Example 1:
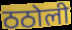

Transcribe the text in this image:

ठठोली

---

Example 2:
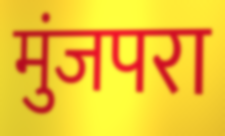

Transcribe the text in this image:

मुंजपरा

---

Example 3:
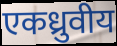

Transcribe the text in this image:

एकध्रुवीय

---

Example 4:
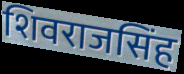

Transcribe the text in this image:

शिवराजसिंह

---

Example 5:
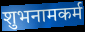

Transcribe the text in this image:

शुभनामकर्म